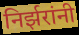
निर्झरांनी